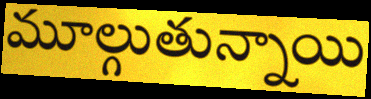
మూల్గుతున్నాయి